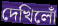
দেখিলোঁ